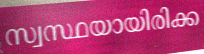
സ്വസ്ഥയായിരിക്ക